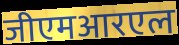
जीएमआरएल